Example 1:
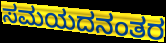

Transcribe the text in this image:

ಸಮಯದನಂತರ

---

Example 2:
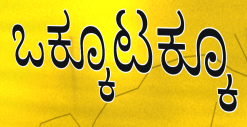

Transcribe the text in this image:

ಒಕ್ಕೂಟಕ್ಕೂ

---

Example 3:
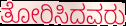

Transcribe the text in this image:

ತೋರಿಸಿದವರು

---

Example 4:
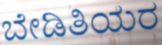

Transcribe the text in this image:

ಬೇಡಿತಿಯರ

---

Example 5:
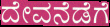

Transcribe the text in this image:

ದೇವನೆಡೆಗೆ